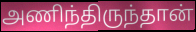
அணிந்திருந்தான்